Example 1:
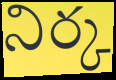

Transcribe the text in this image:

నిర్క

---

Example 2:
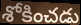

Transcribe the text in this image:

శోకించడు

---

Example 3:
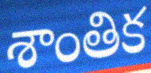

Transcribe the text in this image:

శాంతిక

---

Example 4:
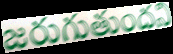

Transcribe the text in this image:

జరుగుతుందని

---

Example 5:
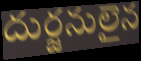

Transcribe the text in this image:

దుర్జనులైన